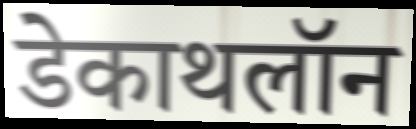
डेकाथलॉन